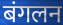
बंगलन